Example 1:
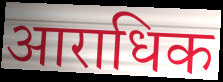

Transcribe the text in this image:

आराधिक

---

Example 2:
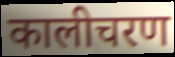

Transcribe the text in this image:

कालीचरण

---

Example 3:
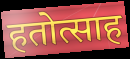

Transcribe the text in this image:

हतोत्साह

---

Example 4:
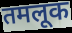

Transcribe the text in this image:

तमलूक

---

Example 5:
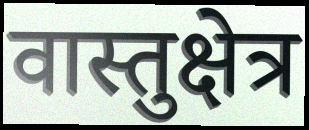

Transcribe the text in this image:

वास्तुक्षेत्र